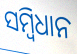
ସମ୍ୱିଧାନ